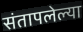
संतापलेल्या